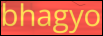
bhagyo